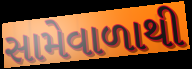
સામેવાળાથી